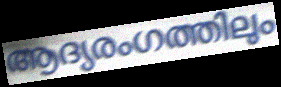
ആദ്യരംഗത്തിലും